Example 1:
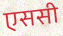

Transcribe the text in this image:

एससी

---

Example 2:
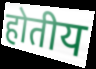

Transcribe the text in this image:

होतीय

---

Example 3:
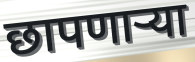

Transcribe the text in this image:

छापणाऱ्या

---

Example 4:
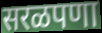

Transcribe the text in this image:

सरळपणा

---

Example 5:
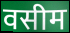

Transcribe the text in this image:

वसीम